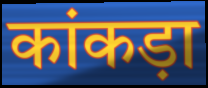
कांकड़ा